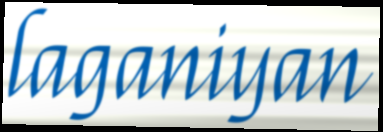
laganiyan